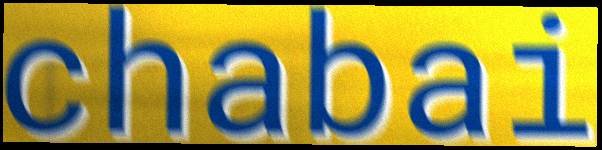
chabai